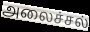
அலைச்சல்